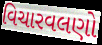
વિચારવલણો